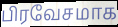
பிரவேசமாக